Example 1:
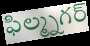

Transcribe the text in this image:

ఫిల్మ్నగర్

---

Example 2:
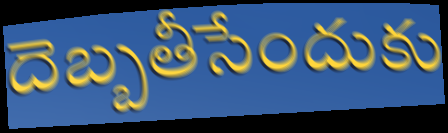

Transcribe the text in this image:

దెబ్బతీసేందుకు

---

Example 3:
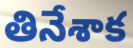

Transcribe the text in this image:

తినేశాక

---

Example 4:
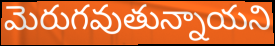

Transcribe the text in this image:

మెరుగవుతున్నాయని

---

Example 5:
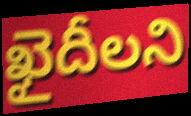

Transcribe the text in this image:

ఖైదీలని